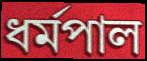
ধৰ্মপাল